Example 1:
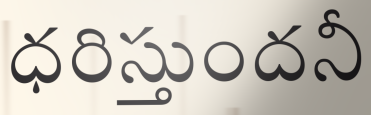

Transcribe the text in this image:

ధరిస్తుందనీ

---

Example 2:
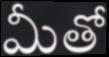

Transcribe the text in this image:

మీతో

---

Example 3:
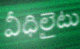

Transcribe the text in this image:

వీధిలైటు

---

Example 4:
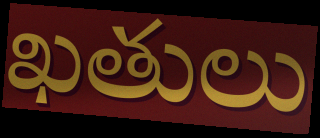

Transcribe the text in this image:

ఖతులు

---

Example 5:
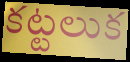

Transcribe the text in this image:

కట్టలుక